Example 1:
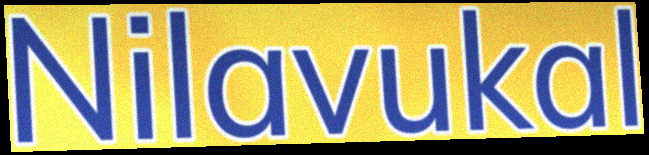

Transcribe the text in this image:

Nilavukal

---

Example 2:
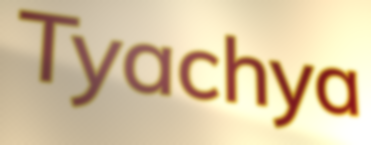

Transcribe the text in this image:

Tyachya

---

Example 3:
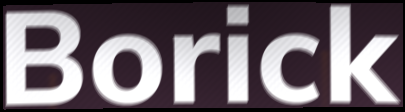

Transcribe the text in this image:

Borick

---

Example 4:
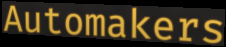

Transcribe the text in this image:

Automakers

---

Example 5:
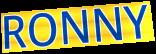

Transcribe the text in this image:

RONNY